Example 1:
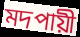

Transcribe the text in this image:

মদপায়ী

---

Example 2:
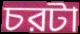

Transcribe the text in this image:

চরটা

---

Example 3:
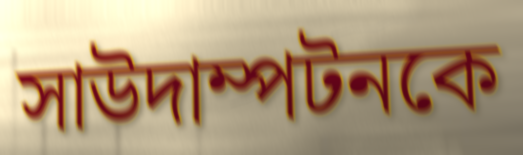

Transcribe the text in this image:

সাউদাম্পটনকে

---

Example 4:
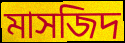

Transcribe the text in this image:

মাসজিদ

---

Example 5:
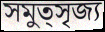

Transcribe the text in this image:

সমুত্সৃজ্য